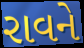
રાવને